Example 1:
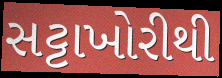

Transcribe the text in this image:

સટ્ટાખોરીથી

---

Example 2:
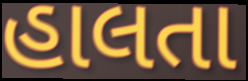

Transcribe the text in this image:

હાલતા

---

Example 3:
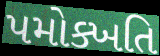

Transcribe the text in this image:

પમોક્ખતિ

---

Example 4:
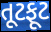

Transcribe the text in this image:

તૂટફૂટ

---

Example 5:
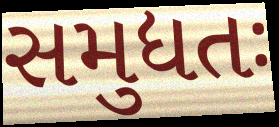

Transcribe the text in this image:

સમુદ્યતઃ